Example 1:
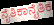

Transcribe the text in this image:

ನೈತಿಕಾನೈತಿಕ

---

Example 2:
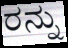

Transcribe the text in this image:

ರನ್ನು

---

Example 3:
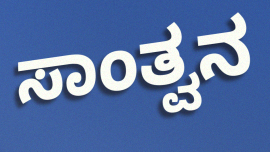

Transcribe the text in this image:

ಸಾಂತ್ವನ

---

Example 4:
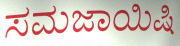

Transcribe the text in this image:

ಸಮಜಾಯಿಷಿ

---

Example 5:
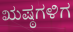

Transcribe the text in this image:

ಋಷ್ಠಗಳಿಗ